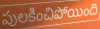
పులకించిపోయింది